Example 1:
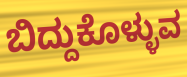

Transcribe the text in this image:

ಬಿದ್ದುಕೊಳ್ಳುವ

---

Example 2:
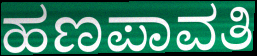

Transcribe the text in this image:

ಹಣಪಾವತಿ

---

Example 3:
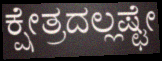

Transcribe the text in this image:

ಕ್ಷೇತ್ರದಲ್ಲಷ್ಟೇ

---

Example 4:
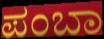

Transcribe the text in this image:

ಪಂಬಾ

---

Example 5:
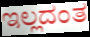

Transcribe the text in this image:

ಇಲ್ಲದಂತ